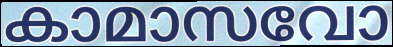
കാമാസവോ